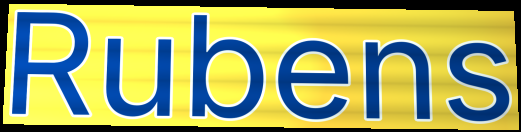
Rubens